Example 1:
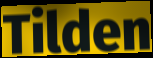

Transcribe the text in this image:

Tilden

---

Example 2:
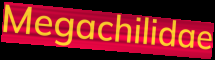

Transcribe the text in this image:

Megachilidae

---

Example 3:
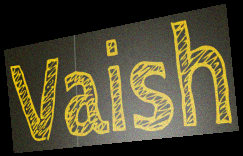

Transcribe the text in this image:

Vaish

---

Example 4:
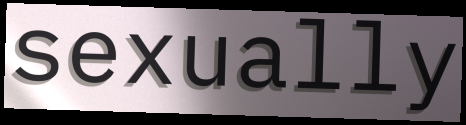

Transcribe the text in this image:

sexually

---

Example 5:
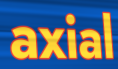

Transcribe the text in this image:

axial